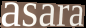
asara